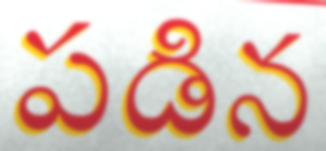
పడిన